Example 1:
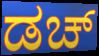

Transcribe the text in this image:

ಡಚ್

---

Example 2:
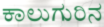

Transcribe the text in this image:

ಕಾಲುಗುರಿನ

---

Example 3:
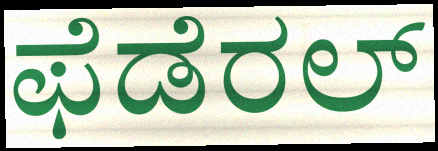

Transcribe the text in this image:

ಫೆಡೆರಲ್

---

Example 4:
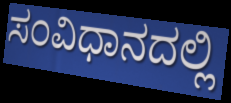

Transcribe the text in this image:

ಸಂವಿಧಾನದಲ್ಲಿ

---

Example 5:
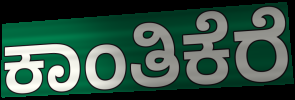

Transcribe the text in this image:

ಕಾಂತಿಕೆರೆ